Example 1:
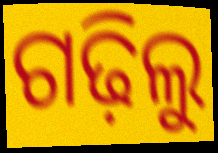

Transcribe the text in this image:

ଗଢ଼ିଲୁ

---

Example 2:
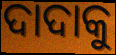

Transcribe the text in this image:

ଦାଦାକୁ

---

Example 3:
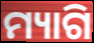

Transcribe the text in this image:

ମ୍ୟାଗି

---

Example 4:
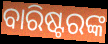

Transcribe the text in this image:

ବାରିଷ୍ଟରଙ୍କ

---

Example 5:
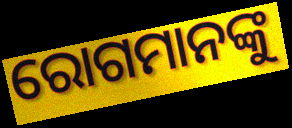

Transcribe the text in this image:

ରୋଗମାନଙ୍କୁ